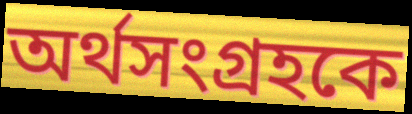
অর্থসংগ্রহকে